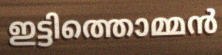
ഇട്ടിത്തൊമ്മൻ